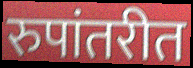
रुपांतरीत